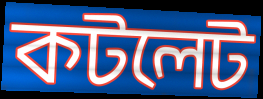
কটলেট